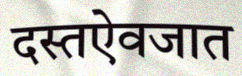
दस्तऐवजात